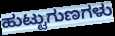
ಹುಟ್ಟುಗುಣಗಳು